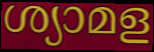
ശ്യാമള